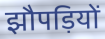
झौपड़ियों